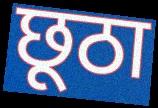
छूठा